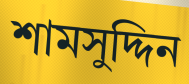
শামসুদ্দিন